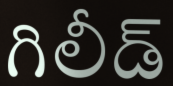
గిలీడ్